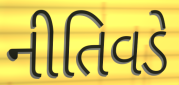
નીતિવડે